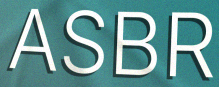
ASBR